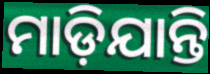
ମାଡ଼ିଯାନ୍ତି